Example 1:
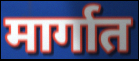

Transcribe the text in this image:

मार्गात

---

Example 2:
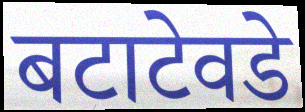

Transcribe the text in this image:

बटाटेवडे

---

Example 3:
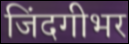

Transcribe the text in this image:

जिंदगीभर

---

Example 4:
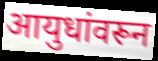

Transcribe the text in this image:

आयुधांवरून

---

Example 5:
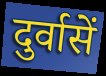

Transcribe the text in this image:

दुर्वासें